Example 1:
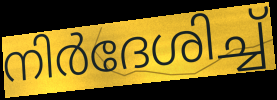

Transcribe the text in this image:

നിർദേശിച്ച്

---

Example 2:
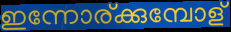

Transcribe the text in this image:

ഇന്നോര്ക്കുമ്പോള്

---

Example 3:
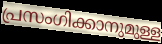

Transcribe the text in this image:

പ്രസംഗിക്കാനുമുള്ള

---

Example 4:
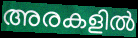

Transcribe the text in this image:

അരകളിൽ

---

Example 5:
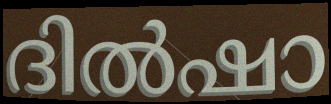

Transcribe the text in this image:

ദിൽഷാ